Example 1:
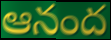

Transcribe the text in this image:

ఆనంద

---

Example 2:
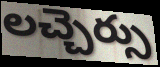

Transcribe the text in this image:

లచ్చెర్సు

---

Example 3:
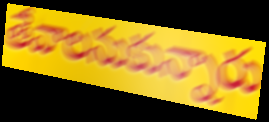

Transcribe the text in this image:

తేవాలనుకున్నారు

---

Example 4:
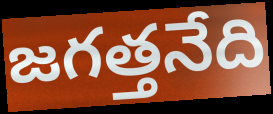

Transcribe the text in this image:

జగత్తనేది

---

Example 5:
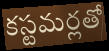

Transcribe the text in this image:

కస్టమర్లతో